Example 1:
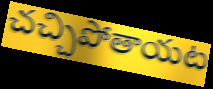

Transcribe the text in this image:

చచ్చిపోతాయట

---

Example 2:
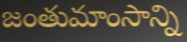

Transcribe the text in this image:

జంతుమాంసాన్ని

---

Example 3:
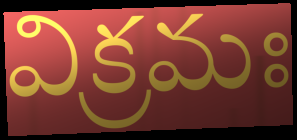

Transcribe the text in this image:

విక్రమః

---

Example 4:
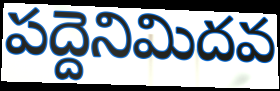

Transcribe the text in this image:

పద్దెనిమిదవ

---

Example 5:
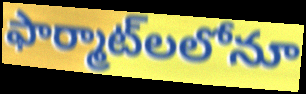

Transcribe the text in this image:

ఫార్మాట్‌లలోనూ